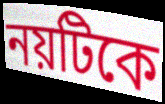
নয়টিকে